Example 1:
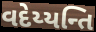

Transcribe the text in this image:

વદેય્યન્તિ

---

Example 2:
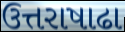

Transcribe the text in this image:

ઉત્તરાષાઢા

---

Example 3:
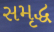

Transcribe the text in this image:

સમૃદ્ધ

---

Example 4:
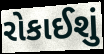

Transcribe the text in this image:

રોકાઈશું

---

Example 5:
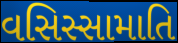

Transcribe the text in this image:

વસિસ્સામાતિ